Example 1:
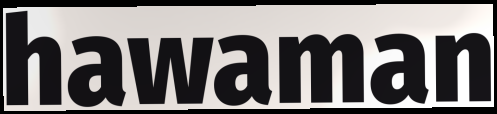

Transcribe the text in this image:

hawaman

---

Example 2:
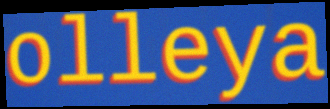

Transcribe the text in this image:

olleya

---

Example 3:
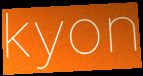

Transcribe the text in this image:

kyon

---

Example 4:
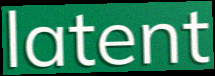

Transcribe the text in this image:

latent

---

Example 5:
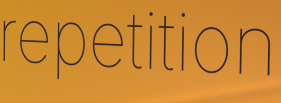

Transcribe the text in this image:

repetition